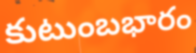
కుటుంబభారం